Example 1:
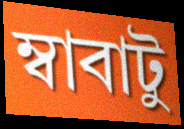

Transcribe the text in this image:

ম্বাবাটু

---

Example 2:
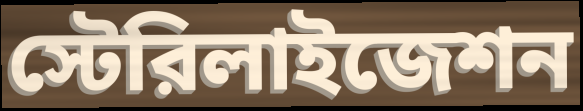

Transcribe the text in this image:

স্টেরিলাইজেশন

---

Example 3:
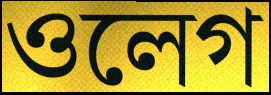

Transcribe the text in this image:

ওলেগ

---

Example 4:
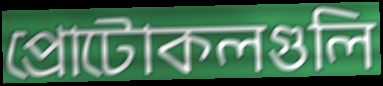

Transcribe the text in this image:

প্রোটোকলগুলি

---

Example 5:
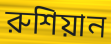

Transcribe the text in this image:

রুশিয়ান